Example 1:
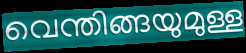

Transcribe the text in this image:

വെന്തിങ്ങയുമുള്ള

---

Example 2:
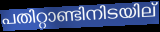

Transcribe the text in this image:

പതിറ്റാണ്ടിനിടയില്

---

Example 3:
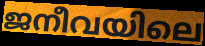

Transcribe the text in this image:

ജനീവയിലെ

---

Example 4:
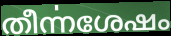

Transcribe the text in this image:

തീൎന്നശേഷം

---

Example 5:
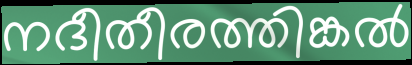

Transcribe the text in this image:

നദീതീരത്തിങ്കൽ